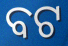
ବଟ